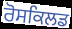
ਰੋਸਕਿਲਡ